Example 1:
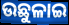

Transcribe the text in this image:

ଉଛୁଳାଇ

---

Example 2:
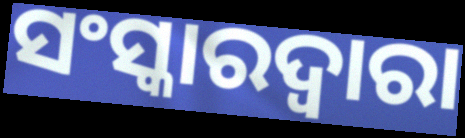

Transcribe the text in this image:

ସଂସ୍କାରଦ୍ୱାରା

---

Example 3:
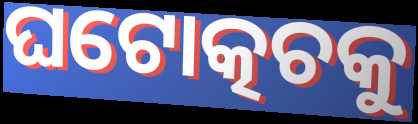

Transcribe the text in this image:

ଘଟୋତ୍କଚକୁ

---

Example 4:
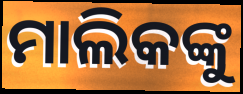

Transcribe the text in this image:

ମାଲିକଙ୍କୁ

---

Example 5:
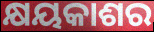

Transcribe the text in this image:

କ୍ଷୟକାଶର